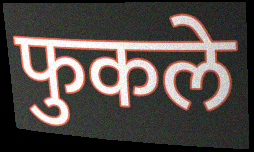
फुकले